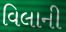
વિલાની